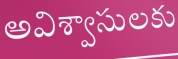
అవిశ్వాసులకు